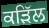
ਕੜਿੱਲ